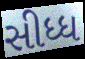
સીધ્ધ